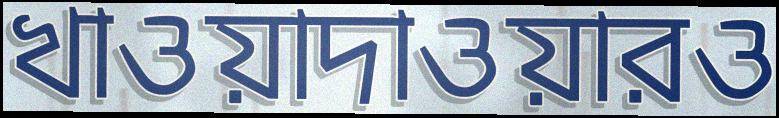
খাওয়াদাওয়ারও